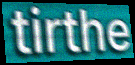
tirthe